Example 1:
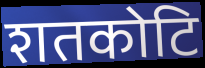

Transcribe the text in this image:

शतकोटि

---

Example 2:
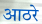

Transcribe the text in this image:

आठरे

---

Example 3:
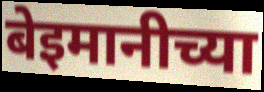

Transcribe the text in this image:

बेइमानीच्या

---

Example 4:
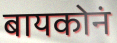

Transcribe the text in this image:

बायकोनं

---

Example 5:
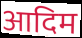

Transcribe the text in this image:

आदिम